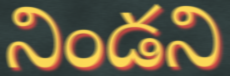
నిండని